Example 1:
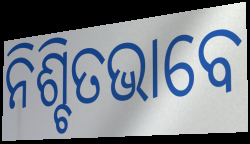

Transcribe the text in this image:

ନିଶ୍ଚିତଭାବେ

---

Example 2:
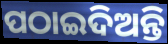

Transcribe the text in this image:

ପଠାଇଦିଅନ୍ତି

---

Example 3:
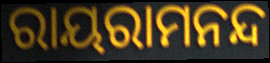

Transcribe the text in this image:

ରାୟରାମନନ୍ଦ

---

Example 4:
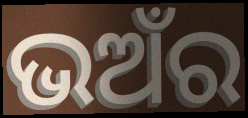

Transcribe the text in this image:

ଭଅଁର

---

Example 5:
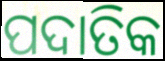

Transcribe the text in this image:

ପଦାତିକ